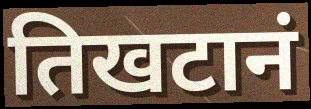
तिखटानं